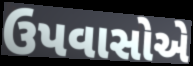
ઉપવાસોએ